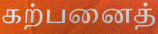
கற்பனைத்